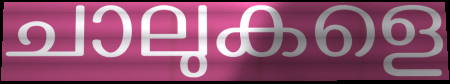
ചാലുകളെ